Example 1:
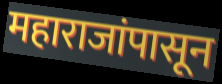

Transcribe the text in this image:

महाराजांपासून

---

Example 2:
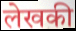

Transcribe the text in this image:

लेखकी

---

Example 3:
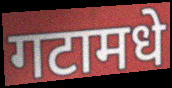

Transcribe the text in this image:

गटामधे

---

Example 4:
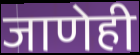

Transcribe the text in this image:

जाणेही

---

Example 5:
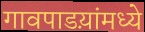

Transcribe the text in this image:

गावपाडय़ांमध्ये